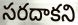
సరదాకని